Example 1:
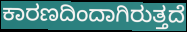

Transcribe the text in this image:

ಕಾರಣದಿಂದಾಗಿರುತ್ತದೆ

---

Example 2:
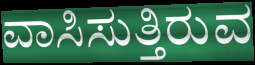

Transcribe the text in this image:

ವಾಸಿಸುತ್ತಿರುವ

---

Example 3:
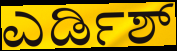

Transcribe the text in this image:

ಎರ್ಡಿಶ್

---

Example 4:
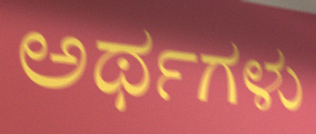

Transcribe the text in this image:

ಅರ್ಥಗಳು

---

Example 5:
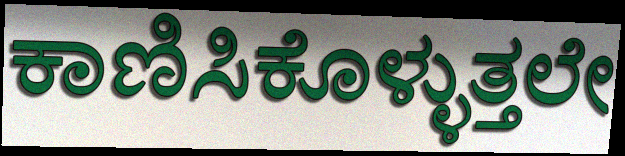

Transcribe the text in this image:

ಕಾಣಿಸಿಕೊಳ್ಳುತ್ತಲೇ